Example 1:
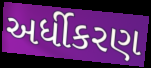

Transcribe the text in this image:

અર્ધીકરણ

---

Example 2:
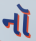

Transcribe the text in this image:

નૉ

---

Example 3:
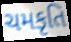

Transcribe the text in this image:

ચમકૃતિ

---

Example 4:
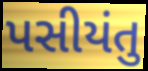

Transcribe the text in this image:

પસીયંતુ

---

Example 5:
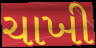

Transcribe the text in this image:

ચાખી